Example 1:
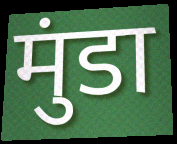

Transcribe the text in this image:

मुंडा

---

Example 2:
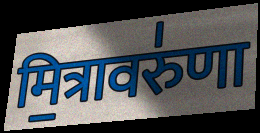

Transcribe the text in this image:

मि॒त्रावरु॑णा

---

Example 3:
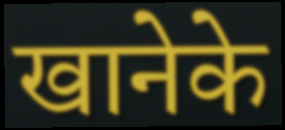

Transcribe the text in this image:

खानेके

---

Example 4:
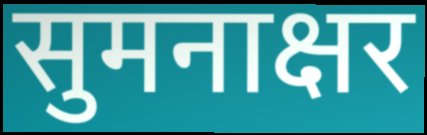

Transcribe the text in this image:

सुमनाक्षर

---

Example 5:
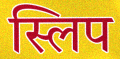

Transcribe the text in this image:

स्लिप